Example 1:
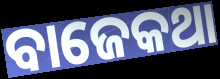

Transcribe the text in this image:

ବାଜେକଥା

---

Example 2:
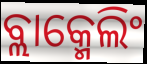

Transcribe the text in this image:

ବ୍ଲାକ୍ମେଲିଂ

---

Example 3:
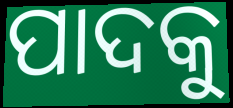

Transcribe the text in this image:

ପାଦକୁ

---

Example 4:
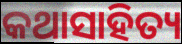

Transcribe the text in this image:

କଥାସାହିତ୍ୟ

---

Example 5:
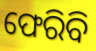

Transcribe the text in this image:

ଫେରିବି